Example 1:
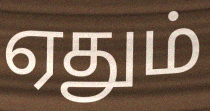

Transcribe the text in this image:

ஏதும்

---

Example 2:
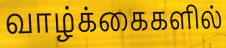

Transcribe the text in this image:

வாழ்க்கைகளில்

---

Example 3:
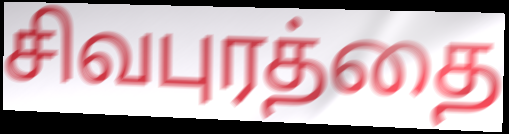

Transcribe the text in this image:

சிவபுரத்தை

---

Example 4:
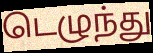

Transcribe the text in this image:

டெழுந்து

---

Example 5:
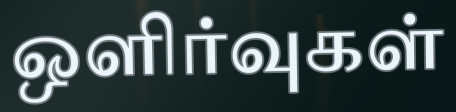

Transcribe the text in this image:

ஒளிர்வுகள்